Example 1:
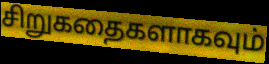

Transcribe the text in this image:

சிறுகதைகளாகவும்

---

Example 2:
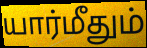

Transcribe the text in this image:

யார்மீதும்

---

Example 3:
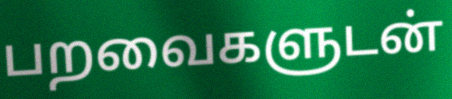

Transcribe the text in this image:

பறவைகளுடன்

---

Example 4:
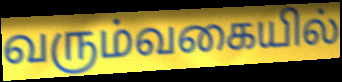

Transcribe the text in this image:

வரும்வகையில்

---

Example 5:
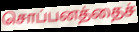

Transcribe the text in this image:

சொப்பனத்தைச்